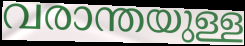
വരാന്തയുള്ള